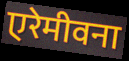
एरेमीवना